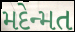
મદેન્મત